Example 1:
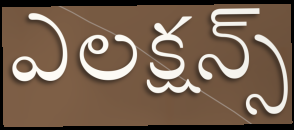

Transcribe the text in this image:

ఎలక్షన్స్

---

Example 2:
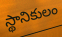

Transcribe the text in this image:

స్థానికులం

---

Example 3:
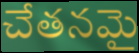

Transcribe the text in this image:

చేతనమై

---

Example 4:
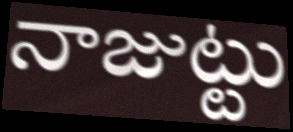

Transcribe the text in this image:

నాజుట్టు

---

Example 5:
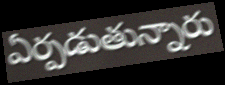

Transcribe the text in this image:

ఏర్పడుతున్నారు